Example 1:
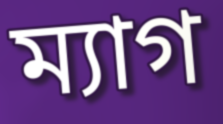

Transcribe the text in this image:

ম্যাগ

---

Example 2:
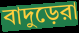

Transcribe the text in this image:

বাদুড়েরা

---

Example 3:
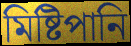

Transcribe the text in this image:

মিষ্টিপানি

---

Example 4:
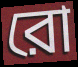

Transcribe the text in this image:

রো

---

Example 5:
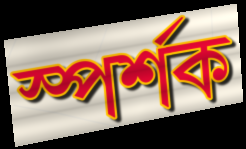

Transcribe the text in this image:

স্পর্শক